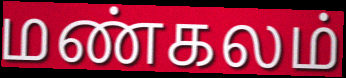
மண்கலம்